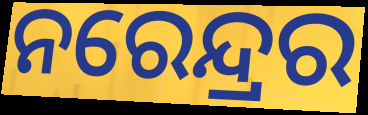
ନରେନ୍ଦ୍ରର